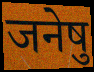
जनेषु